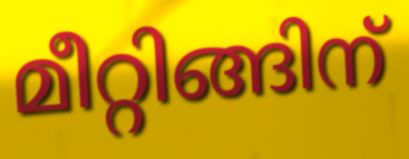
മീറ്റിങ്ങിന്